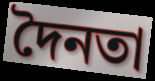
দৈনতা